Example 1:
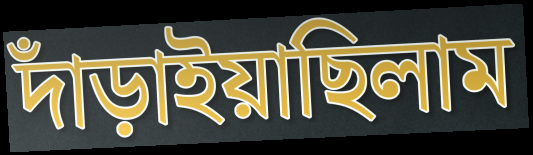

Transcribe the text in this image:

দাঁড়াইয়াছিলাম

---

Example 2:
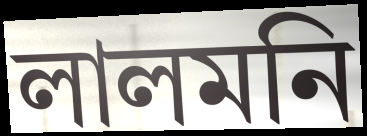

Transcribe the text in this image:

লালমনি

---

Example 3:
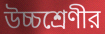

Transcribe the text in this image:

উচ্চশ্রেণীর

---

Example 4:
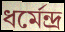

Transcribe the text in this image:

ধর্মেন্দ্র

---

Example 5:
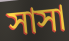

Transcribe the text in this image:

সাসা